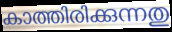
കാത്തിരിക്കുന്നതു